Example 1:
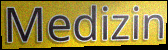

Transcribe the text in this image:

Medizin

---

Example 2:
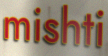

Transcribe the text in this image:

mishti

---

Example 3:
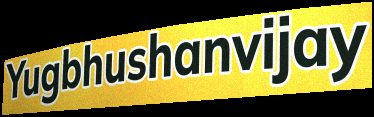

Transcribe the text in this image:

Yugbhushanvijay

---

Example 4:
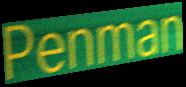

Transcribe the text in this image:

Penman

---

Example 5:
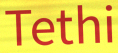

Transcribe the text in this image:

Tethi